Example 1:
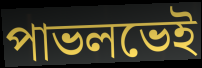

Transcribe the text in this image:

পাভলভেই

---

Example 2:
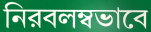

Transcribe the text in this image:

নিরবলম্বভাবে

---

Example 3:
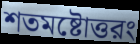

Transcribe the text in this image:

শতমষ্টোত্তরং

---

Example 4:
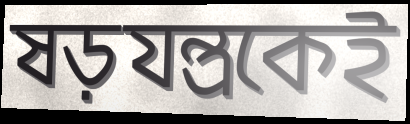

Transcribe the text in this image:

ষড়যন্ত্রকেই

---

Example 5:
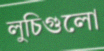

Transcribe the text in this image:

লুচিগুলো